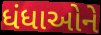
ધંધાઓને